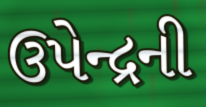
ઉપેન્દ્રની